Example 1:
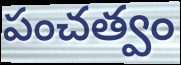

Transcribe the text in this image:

పంచత్వం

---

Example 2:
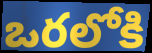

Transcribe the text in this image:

ఒరలోకి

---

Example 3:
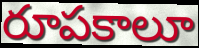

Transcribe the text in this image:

రూపకాలూ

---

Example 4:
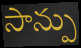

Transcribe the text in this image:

సాన్పు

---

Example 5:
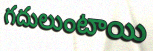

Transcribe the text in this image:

గదులుంటాయి